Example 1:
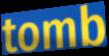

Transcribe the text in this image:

tomb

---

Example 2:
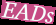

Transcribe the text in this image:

EADs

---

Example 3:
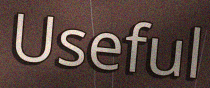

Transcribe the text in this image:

Useful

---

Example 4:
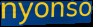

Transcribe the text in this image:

nyonso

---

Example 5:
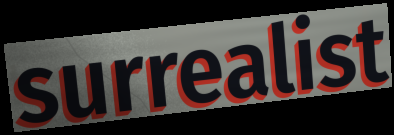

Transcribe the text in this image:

surrealist